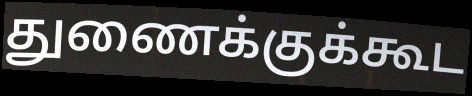
துணைக்குக்கூட